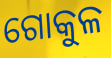
ଗୋକୁଳ